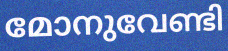
മോനുവേണ്ടി